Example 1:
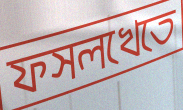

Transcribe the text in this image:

ফসলখেতে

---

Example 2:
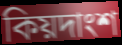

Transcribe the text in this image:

কিয়দাংশ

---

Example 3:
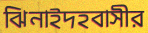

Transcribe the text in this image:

ঝিনাইদহবাসীর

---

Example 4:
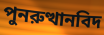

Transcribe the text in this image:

পুনরুত্থানবিদ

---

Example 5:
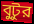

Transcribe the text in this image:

বুটুর